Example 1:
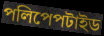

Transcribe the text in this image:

পলিপেপটাইড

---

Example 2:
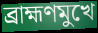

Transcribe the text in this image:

ব্রাহ্মণমুখে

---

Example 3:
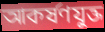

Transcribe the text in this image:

আকর্ষণযুক্ত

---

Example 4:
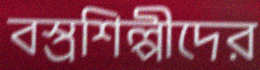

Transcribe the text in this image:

বস্ত্রশিল্পীদের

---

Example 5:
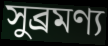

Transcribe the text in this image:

সুব্রমণ্য